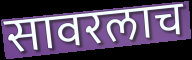
सावरलाच